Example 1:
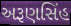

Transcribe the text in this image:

અરૂણસિંહ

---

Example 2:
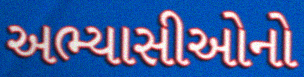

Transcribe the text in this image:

અભ્યાસીઓનો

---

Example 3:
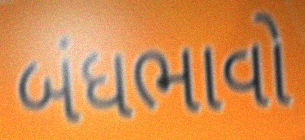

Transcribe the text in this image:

બંધભાવો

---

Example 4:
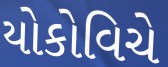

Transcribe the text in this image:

યોકોવિચે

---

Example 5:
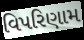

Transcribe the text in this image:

વિપરિણામ